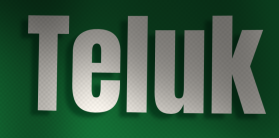
Teluk